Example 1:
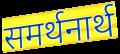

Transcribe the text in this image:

समर्थनार्थ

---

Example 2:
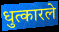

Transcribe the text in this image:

धुत्कारले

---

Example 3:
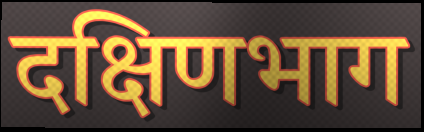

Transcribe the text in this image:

दक्षिणभाग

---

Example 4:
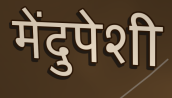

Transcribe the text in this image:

मेंदुपेशी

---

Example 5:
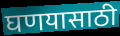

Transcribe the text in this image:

घणयासाठी